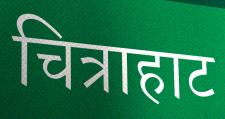
चित्राहाट